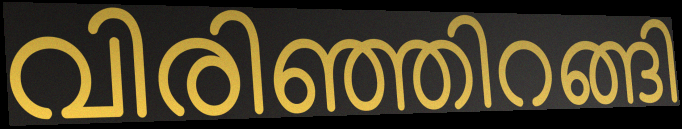
വിരിഞ്ഞിറങ്ങി